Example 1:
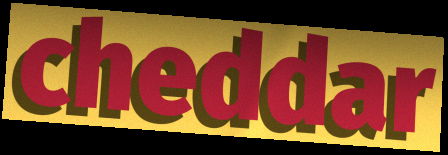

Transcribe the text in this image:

cheddar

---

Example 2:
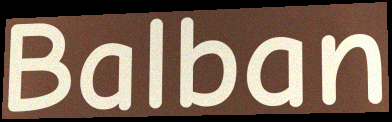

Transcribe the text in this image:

Balban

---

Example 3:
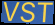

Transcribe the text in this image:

VST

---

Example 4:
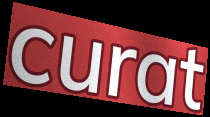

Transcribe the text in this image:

curat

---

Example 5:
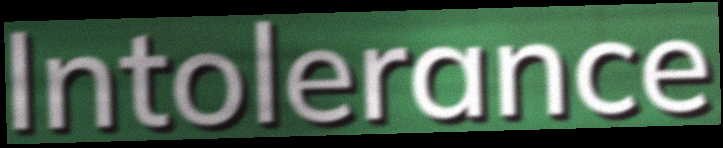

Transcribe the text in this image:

Intolerance